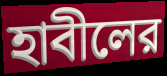
হাবীলের